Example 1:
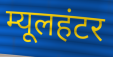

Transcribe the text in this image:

म्यूलहंटर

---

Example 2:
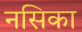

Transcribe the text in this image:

नसिका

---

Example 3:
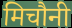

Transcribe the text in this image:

मिचौनी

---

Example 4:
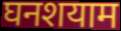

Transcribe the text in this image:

घनशयाम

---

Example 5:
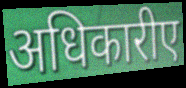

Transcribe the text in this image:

अधिकारीए